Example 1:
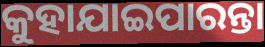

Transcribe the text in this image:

କୁହାଯାଇପାରନ୍ତା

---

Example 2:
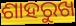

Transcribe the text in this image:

ଶାହରୁଖ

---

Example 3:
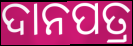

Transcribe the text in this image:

ଦାନପତ୍ର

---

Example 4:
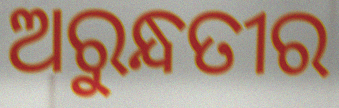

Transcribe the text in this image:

ଅରୁନ୍ଧତୀର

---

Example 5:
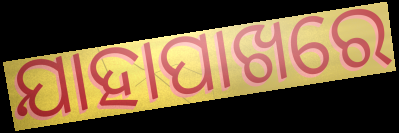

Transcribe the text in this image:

ଯାହାପାଖରେ